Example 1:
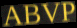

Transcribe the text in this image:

ABVP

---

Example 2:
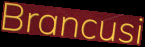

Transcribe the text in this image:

Brancusi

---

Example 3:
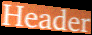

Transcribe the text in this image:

Header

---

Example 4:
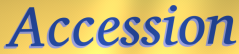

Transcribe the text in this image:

Accession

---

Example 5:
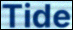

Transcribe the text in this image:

Tide